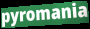
pyromania